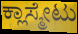
ಕ್ಲಾಸ್ಮೇಟು